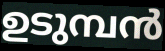
ഉടുമ്പൻ